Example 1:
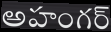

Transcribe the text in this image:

అహంగర్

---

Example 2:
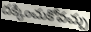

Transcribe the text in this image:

దక్కించుకోవచ్చు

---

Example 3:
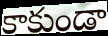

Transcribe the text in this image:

కాకుండా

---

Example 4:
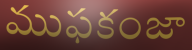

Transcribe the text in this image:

ముఫకంజా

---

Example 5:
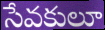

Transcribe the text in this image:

సేవకులూ